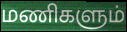
மணிகளும்